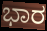
ಭಾರ